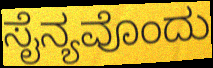
ಸೈನ್ಯವೊಂದು